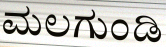
ಮಲಗುಂಡಿ